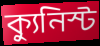
ক্যুনিস্ট